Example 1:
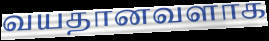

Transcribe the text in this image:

வயதானவளாக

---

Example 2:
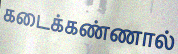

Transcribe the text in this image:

கடைக்கண்ணால்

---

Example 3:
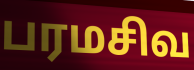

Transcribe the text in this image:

பரமசிவ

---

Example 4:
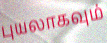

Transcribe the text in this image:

புயலாகவும்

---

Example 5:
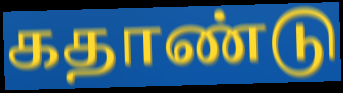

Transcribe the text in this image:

கதாண்டு